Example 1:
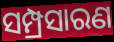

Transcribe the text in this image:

ସମ୍ପ୍ରସାରଣ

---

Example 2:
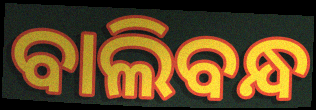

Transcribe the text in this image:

ବାଲିବନ୍ଧ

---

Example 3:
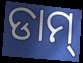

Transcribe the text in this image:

ଡାମ୍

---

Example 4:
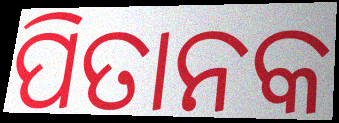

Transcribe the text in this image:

ପିତାନକ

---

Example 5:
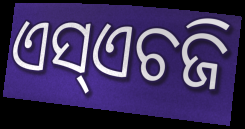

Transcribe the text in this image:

ଏସ୍ଏଚଜି